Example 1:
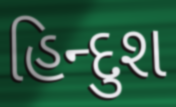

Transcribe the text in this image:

હિન્દુશ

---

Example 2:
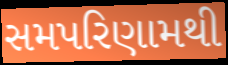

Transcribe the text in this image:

સમપરિણામથી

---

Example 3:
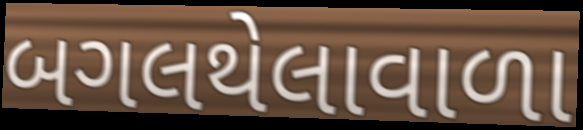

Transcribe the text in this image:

બગલથેલાવાળા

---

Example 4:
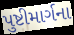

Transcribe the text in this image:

પુષ્ટીમાર્ગના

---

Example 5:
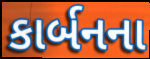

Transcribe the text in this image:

કાર્બનના